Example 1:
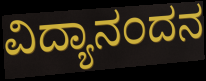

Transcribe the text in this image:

ವಿದ್ಯಾನಂದನ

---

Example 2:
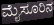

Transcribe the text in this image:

ಮೈಸೂರಿನ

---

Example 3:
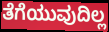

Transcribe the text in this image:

ತೆಗೆಯುವುದಿಲ್ಲ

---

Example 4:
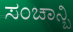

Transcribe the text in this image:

ಸಂಚಾನ್ಬಿ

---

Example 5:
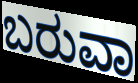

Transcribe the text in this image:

ಬರುವಾ